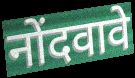
नोंदवावे